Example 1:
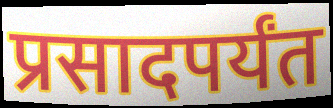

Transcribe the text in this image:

प्रसादपर्यंत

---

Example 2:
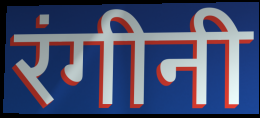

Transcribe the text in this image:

रंगीनी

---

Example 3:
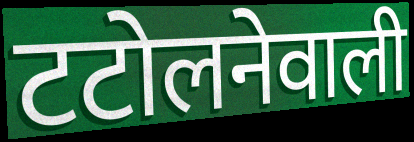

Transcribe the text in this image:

टटोलनेवाली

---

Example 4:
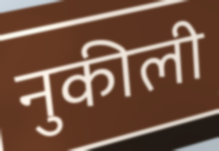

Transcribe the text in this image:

नुकीली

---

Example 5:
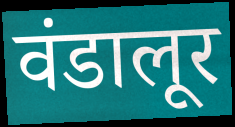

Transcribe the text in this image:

वंडालूर